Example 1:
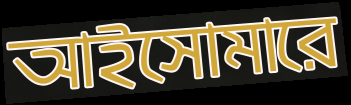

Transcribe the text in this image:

আইসোমারে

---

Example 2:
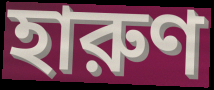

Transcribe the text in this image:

হারুণ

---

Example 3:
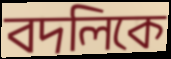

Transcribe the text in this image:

বদলিকে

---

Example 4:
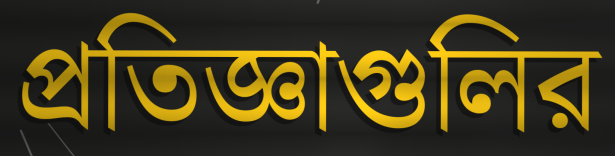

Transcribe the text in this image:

প্রতিজ্ঞাগুলির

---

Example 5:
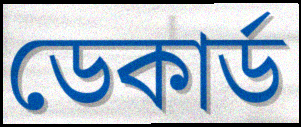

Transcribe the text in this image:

ডেকার্ড